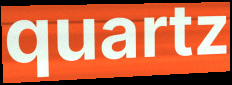
quartz